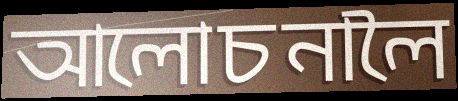
আলোচনালৈ